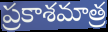
ప్రకాశమాత్ర